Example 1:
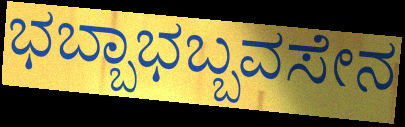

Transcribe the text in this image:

ಭಬ್ಬಾಭಬ್ಬವಸೇನ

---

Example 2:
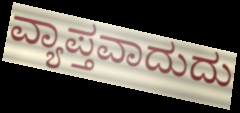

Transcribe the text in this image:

ವ್ಯಾಪ್ತವಾದುದು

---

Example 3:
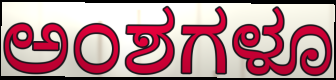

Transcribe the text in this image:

ಅಂಶಗಳೂ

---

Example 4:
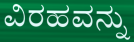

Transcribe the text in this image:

ವಿರಹವನ್ನು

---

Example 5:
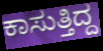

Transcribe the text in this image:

ಕಾಸುತ್ತಿದ್ದ